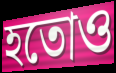
হতোও